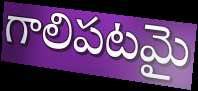
గాలిపటమై